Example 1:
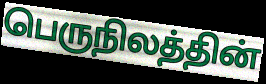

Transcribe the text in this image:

பெருநிலத்தின்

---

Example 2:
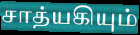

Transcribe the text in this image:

சாத்யகியும்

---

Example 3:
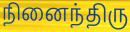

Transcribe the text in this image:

நினைந்திரு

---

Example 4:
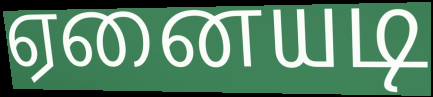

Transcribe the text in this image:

ஏனையடி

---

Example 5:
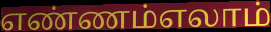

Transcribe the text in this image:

எண்ணம்எலாம்